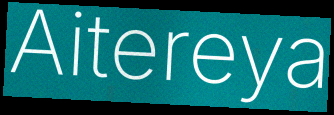
Aitereya